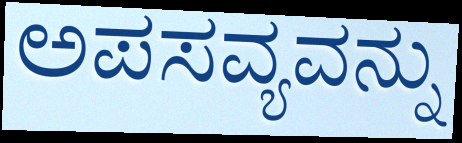
ಅಪಸವ್ಯವನ್ನು